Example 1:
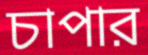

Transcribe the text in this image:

চাপার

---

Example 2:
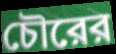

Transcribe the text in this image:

চৌরের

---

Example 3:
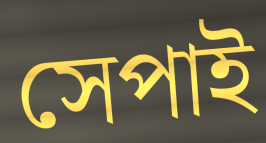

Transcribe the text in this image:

সেপাই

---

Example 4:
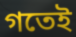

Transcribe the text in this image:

গতেই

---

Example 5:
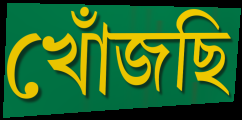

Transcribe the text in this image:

খোঁজছি